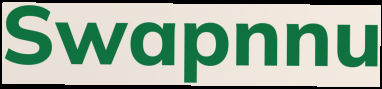
Swapnnu